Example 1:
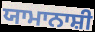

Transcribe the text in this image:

ਯਾਮਾਨਾਸ਼ੀ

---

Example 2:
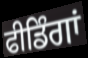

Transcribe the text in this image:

ਫੀਡਿੰਗਾਂ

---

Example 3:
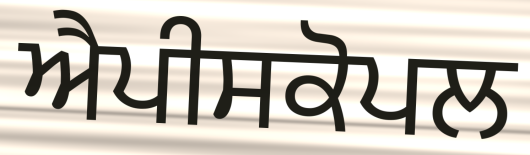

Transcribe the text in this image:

ਐਪੀਸਕੋਪਲ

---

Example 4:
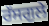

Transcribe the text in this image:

ਰੱਸਗੁਲੇ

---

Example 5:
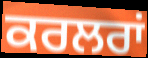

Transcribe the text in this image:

ਕਰਲਰਾਂ